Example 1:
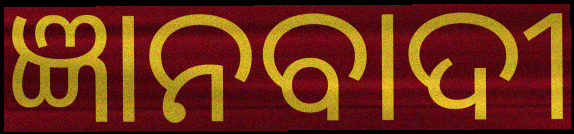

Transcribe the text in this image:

ଜ୍ଞାନବାଦୀ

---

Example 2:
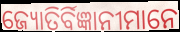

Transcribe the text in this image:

ଜ୍ୟୋତିର୍ବିଜ୍ଞାନୀମାନେ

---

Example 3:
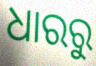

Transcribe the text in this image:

ଧାରରୁ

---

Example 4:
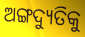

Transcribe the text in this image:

ଅଙ୍ଗଦ୍ୟୁତିକୁ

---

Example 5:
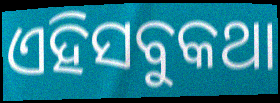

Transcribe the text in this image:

ଏହିସବୁକଥା